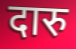
दारु